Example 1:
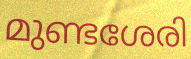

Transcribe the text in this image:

മുണ്ടശേരി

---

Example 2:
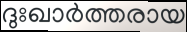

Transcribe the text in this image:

ദുഃഖാർത്തരായ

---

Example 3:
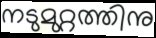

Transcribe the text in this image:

നടുമുറ്റത്തിനു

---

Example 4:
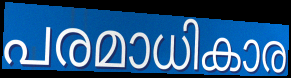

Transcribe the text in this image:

പരമാധികാര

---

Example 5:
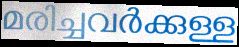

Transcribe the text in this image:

മരിച്ചവർക്കുള്ള